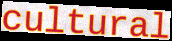
cultural